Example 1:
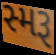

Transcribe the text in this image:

સ્મરૂ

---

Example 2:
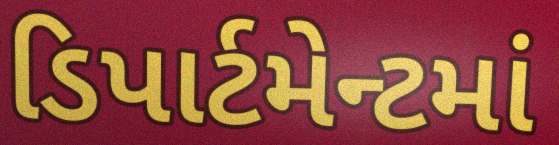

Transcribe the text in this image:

ડિપાર્ટમેન્ટમાં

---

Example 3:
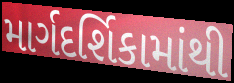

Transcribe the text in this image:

માર્ગદર્શિકામાંથી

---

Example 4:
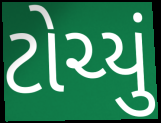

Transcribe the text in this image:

ટોચ્યું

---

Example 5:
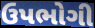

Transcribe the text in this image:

ઉપભોગી